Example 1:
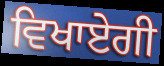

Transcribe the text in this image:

ਵਿਖਾਏਗੀ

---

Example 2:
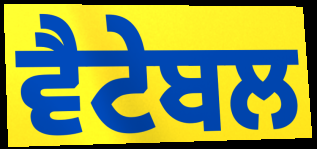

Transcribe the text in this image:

ਵੈਟੇਬਲ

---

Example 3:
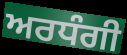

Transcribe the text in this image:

ਅਰਧੰਗੀ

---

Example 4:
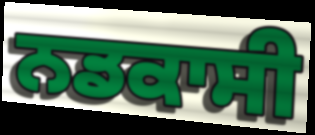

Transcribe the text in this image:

ਨਡਕਾਸੀ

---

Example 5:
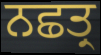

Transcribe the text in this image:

ਨਛਤ੍ਰ